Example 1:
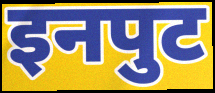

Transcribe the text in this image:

इनपुट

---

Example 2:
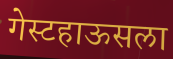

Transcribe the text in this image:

गेस्टहाऊसला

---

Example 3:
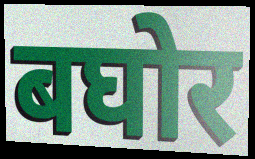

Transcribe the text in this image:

बघोर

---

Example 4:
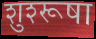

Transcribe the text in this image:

शुश्रूषा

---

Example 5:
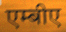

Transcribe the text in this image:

एम्बीए